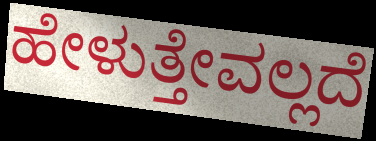
ಹೇಳುತ್ತೇವಲ್ಲದೆ